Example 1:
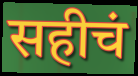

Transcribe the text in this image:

सहीचं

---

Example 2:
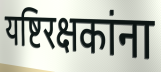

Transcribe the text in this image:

यष्टिरक्षकांना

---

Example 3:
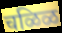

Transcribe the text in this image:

चळिळ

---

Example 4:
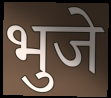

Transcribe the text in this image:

भुजे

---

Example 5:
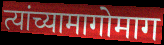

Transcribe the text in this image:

त्यांच्यामागोमाग